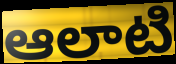
ఆలాటి